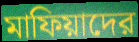
মাফিয়াদের